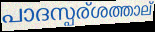
പാദസ്പര്ശത്താല്